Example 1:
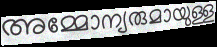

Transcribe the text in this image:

അമ്മോന്യരുമായുള്ള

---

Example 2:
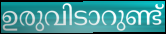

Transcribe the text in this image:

ഉരുവിടാറുണ്ട്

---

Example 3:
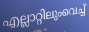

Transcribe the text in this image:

എല്ലാറ്റിലുംവെച്ച്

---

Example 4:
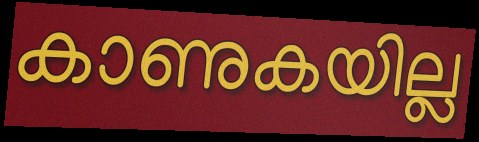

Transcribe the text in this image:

കാണുകയില്ല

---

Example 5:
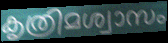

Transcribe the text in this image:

കൃത്രിമശ്വാസം